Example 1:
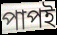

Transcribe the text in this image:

পাপই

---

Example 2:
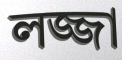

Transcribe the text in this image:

লজ্জা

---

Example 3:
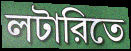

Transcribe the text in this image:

লটারিতে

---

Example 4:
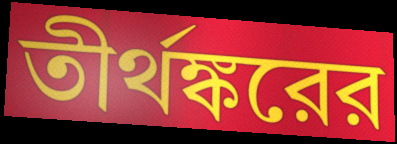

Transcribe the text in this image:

তীর্থঙ্করের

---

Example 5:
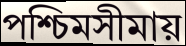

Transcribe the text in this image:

পশ্চিমসীমায়